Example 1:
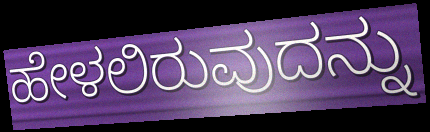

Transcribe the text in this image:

ಹೇಳಲಿರುವುದನ್ನು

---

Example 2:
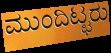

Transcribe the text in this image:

ಮುಂದಿಟ್ಟರು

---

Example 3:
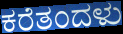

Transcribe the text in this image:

ಕರೆತಂದಳು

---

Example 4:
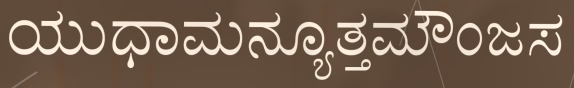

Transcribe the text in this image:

ಯುಧಾಮನ್ಯೂತ್ತಮೌಂಜಸ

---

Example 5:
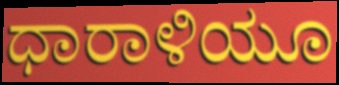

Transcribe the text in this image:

ಧಾರಾಳಿಯೂ